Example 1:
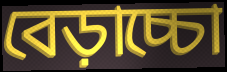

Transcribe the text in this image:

বেড়াচ্চো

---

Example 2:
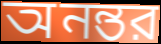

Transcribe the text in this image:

অনন্তর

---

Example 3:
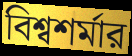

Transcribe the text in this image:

বিশ্বশর্মার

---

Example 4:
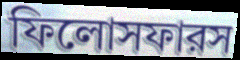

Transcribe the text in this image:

ফিলোসফারস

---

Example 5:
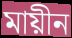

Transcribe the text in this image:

মায়ীন